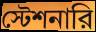
স্টেশনারি